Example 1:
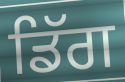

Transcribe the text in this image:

ਡਿੱਗ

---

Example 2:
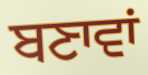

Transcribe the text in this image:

ਬਣਾਵਾਂ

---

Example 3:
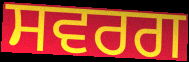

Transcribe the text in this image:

ਸਵਰਗ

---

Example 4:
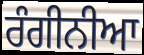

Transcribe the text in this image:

ਰੰਗੀਨੀਆ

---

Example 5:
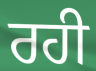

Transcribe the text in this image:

ਰਹੀ